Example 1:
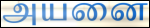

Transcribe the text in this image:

அயனை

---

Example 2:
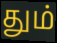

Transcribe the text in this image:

தும்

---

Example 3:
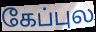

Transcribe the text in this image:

கேப்புல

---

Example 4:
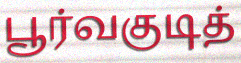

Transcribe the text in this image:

பூர்வகுடித்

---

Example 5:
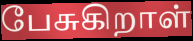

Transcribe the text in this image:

பேசுகிறாள்